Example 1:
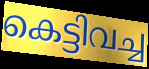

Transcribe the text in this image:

കെട്ടിവച്ച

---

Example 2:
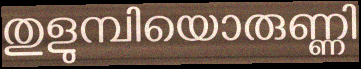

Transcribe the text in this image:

തുളുമ്പിയൊരുണ്ണി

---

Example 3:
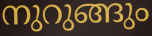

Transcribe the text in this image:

നുറുങ്ങും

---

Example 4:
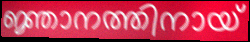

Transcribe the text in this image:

ജ്ഞാനത്തിനായ്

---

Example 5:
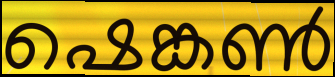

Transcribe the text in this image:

ഷെങ്കൺ